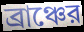
ব্রাঞ্চের